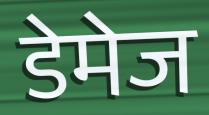
डेमेज